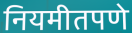
नियमीतपणे